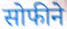
सोफीने